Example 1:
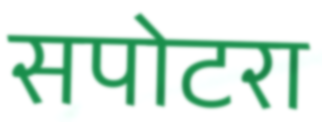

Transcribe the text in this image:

सपोटरा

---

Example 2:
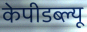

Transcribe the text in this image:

केपीडब्ल्यू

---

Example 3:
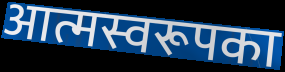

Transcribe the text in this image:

आत्मस्वरूपका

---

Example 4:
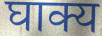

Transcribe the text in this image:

घाक्य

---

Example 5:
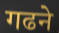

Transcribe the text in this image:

गढने